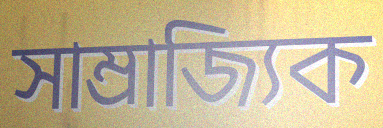
সাম্ৰাজ্যিক